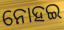
ନୋହଇ